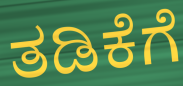
ತಡಿಕೆಗೆ